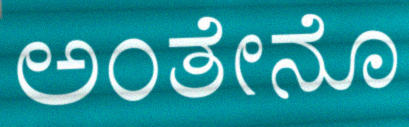
ಅಂತೇನೊ